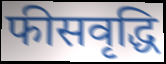
फीसवृद्धि